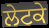
ਲੇਟਕੇ